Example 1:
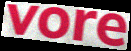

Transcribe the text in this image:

vore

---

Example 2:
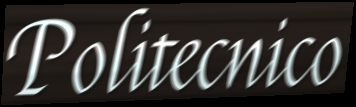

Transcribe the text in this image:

Politecnico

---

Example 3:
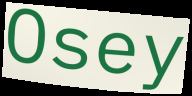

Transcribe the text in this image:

Osey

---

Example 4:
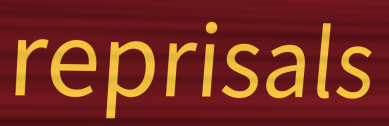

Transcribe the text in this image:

reprisals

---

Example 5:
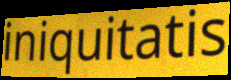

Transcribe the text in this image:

iniquitatis